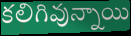
కలిగివున్నాయి